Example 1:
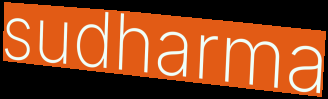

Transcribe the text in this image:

sudharma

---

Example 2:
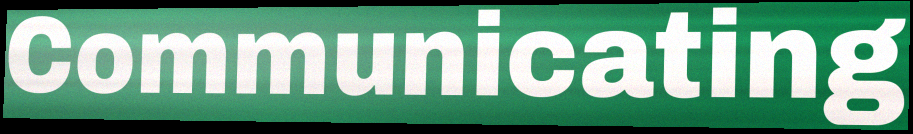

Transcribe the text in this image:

Communicating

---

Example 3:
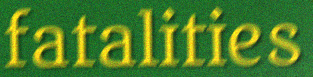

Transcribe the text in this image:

fatalities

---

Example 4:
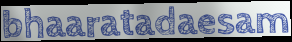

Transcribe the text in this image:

bhaaratadaesam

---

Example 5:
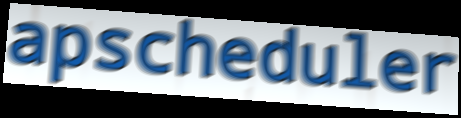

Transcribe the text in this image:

apscheduler